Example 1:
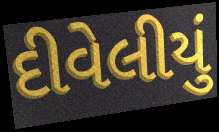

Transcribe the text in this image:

દીવેલીયું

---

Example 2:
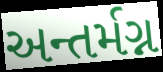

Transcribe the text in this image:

અન્તર્મગ્ન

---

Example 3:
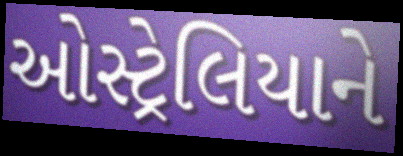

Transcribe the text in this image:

ઓસ્ટ્રેલિયાને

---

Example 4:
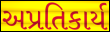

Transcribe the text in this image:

અપ્રતિકાર્ય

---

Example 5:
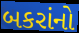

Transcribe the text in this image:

બકરાંનો